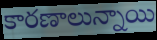
కారణాలున్నాయి